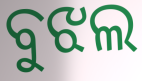
ବୁଝଲ